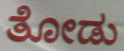
ತೋಡು